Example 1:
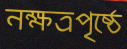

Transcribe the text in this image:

নক্ষত্রপৃষ্ঠে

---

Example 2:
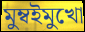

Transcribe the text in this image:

মুম্বইমুখো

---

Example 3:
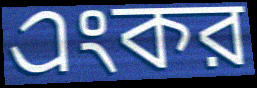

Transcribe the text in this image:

এংকর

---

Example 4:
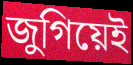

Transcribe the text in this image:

জুগিয়েই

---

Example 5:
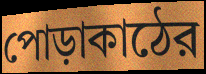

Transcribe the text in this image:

পোড়াকাঠের